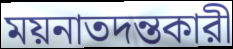
ময়নাতদন্তকারী